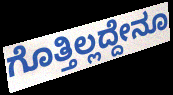
ಗೊತ್ತಿಲ್ಲದ್ದೇನೂ